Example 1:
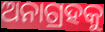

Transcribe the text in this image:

ଅନାଗ୍ରହକୁ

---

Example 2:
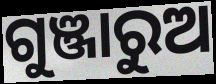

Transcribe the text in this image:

ଗୁଞ୍ଜାରୁଅ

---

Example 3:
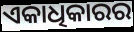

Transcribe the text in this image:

ଏକାଧିକାରର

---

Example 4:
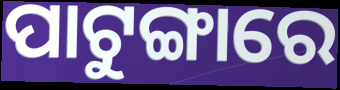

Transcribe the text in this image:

ପାଟୁଙ୍ଗାରେ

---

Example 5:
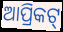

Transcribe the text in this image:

ଆପ୍ରିକଟ୍